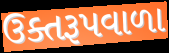
ઉક્તરૂપવાળા